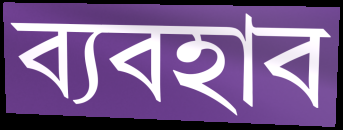
ব্যবহাব